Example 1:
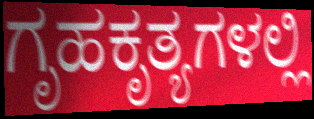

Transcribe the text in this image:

ಗೃಹಕೃತ್ಯಗಳಲ್ಲಿ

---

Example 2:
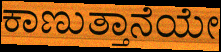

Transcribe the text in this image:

ಕಾಣುತ್ತಾನೆಯೇ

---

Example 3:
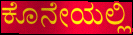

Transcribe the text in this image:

ಕೊನೇಯಲ್ಲಿ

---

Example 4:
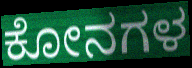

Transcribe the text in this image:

ಕೋನಗಳ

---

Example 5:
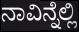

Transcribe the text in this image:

ನಾವಿನ್ನೆಲ್ಲಿ